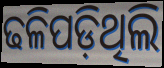
ଢଳିପଡ଼ିଥିଲି